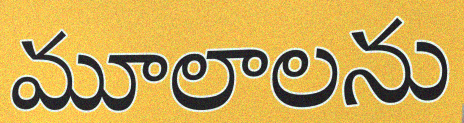
మూలాలను